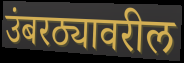
उंबरठ्यावरील